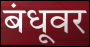
बंधूवर